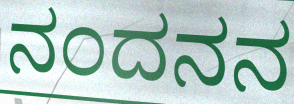
ನಂದನನ